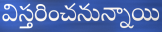
విస్తరించనున్నాయి